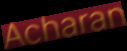
Acharan